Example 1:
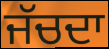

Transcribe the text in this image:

ਜੱਚਦਾ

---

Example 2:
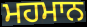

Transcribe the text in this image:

ਮਹਮਾਨ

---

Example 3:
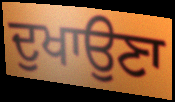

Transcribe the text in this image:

ਦੁਖਾਉਣਾ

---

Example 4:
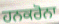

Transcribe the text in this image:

ਹਨਕਰੋਨਾ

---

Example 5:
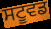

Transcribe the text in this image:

ਸਟੂਵਡ